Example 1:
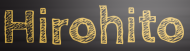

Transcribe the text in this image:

Hirohito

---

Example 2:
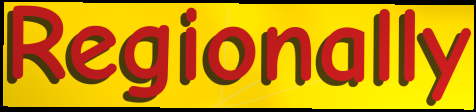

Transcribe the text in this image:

Regionally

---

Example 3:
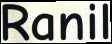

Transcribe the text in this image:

Ranil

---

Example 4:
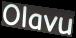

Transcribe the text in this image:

Olavu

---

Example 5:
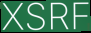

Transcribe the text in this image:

XSRF